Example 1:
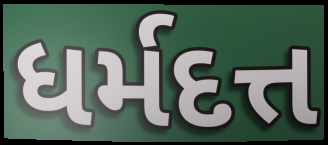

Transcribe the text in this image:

ધર્મદત્ત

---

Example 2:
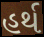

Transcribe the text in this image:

હર્થ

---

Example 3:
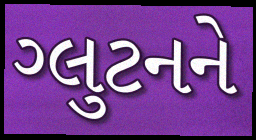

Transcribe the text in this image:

ગ્લુટનને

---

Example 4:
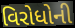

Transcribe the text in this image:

વિરોધોની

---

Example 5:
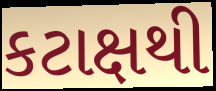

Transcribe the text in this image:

કટાક્ષથી